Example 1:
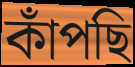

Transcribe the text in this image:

কাঁপছি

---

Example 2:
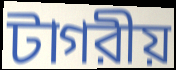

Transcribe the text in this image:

টাগরীয়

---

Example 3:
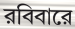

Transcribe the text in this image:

রবিবারে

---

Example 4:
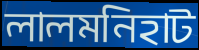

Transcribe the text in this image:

লালমনিহাট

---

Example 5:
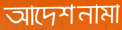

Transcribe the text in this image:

আদেশনামা